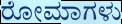
ರೋಮಾಗಳು